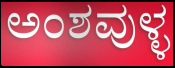
ಅಂಶವುಳ್ಳ